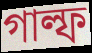
গাল্ফ